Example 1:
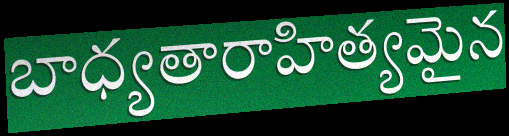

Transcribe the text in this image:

బాధ్యతారాహిత్యమైన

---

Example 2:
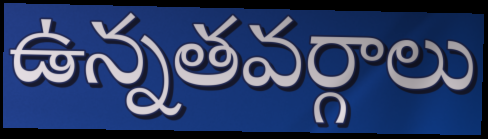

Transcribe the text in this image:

ఉన్నతవర్గాలు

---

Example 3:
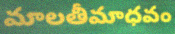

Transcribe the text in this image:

మాలతీమాధవం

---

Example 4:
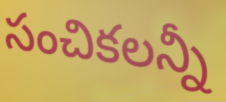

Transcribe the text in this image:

సంచికలన్నీ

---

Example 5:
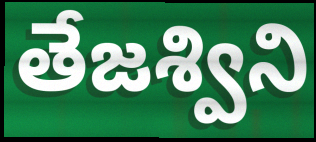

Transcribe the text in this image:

తేజశ్విని